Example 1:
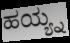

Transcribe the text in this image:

ಹಯ್ಯ್ನ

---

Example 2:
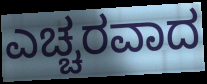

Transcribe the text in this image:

ಎಚ್ಚರವಾದ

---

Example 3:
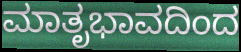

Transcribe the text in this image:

ಮಾತೃಭಾವದಿಂದ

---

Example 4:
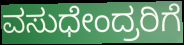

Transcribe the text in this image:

ವಸುಧೇಂದ್ರರಿಗೆ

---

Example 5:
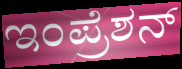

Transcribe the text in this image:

ಇಂಪ್ರೆಶನ್